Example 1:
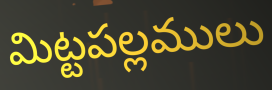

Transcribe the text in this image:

మిట్టపల్లములు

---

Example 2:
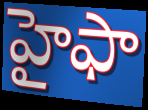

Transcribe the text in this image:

హైఫా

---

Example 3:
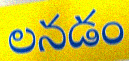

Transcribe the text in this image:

లనడం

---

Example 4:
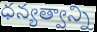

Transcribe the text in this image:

ధన్యత్వాన్ని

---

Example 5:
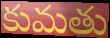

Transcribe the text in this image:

కుమతు